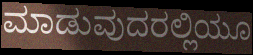
ಮಾಡುವುದರಲ್ಲಿಯೂ